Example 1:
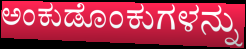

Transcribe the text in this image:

ಅಂಕುಡೊಂಕುಗಳನ್ನು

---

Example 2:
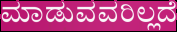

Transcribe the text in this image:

ಮಾಡುವವರಿಲ್ಲದೆ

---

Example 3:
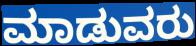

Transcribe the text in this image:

ಮಾಡುವರು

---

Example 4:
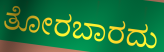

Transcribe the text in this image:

ತೋರಬಾರದು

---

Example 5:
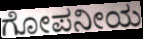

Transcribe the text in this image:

ಗೋಪನೀಯ